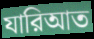
যারিআত